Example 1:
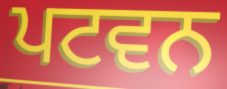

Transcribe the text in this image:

ਪਟਵਨ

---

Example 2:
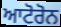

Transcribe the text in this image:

ਆਟੋਰੋਨ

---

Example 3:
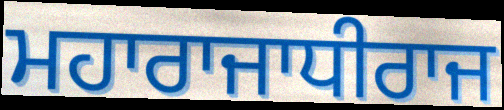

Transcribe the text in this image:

ਮਹਾਰਾਜਾਧੀਰਾਜ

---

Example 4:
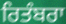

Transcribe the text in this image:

ਰਿਤੰਬਰਾ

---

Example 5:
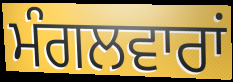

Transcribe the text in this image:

ਮੰਗਲਵਾਰਾਂ